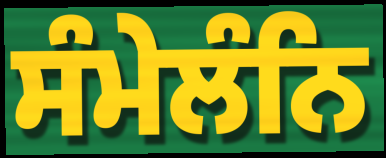
ਸੰਮੇਲੰਨਿ